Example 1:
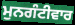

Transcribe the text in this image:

ਮੁਨਗੰਟੀਵਾਰ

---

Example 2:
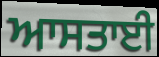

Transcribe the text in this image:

ਆਸਤਾਈ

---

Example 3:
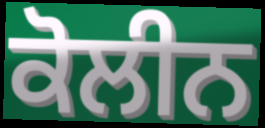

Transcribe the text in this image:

ਕੋਲੀਨ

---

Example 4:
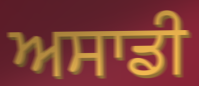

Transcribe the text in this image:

ਅਸਾਡੀ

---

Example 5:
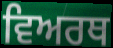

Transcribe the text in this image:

ਵਿਅਰਥ